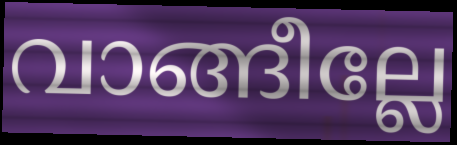
വാങ്ങീല്ലേ